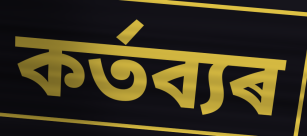
কৰ্তব্যৰ